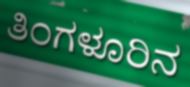
ತಿಂಗಳೂರಿನ